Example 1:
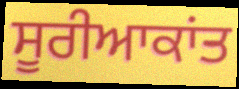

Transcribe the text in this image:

ਸੂਰੀਆਕਾਂਤ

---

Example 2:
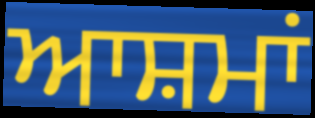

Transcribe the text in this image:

ਆਸ਼ਮਾਂ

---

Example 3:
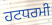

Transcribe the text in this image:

ਹਟਧਰਮੀ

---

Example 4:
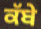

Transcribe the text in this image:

ਕੱਬੇ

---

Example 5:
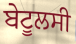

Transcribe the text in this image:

ਬੇਟੂਲਸੀ